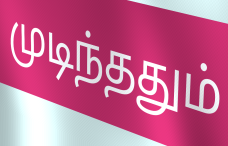
முடிந்ததும்